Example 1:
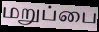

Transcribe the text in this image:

மறுப்பை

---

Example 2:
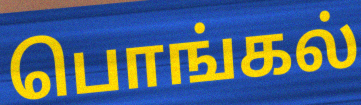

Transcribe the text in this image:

பொங்கல்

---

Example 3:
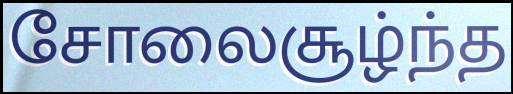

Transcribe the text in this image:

சோலைசூழ்ந்த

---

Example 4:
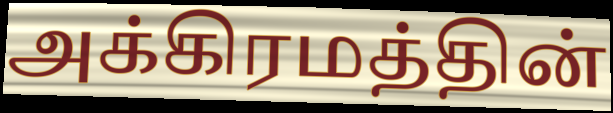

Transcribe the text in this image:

அக்கிரமத்தின்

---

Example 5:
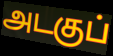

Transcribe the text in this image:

அடகுப்